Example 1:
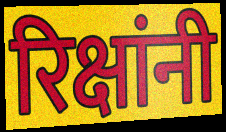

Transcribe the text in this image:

रिक्षांनी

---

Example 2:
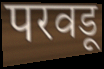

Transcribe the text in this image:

परवडू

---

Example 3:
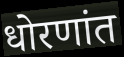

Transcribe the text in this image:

धोरणांत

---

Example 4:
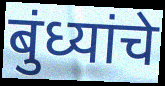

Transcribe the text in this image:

बुंध्यांचे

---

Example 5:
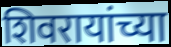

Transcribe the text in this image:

शिवरायांच्या